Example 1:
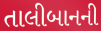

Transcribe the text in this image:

તાલીબાનની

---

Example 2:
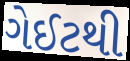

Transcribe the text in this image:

ગેઈટથી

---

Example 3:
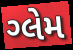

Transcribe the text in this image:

ગ્લેમ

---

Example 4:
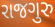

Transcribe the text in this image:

રાજગુરુ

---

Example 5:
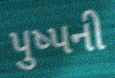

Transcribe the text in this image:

પુષ્પની